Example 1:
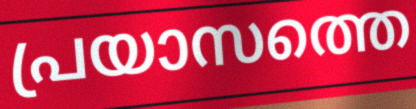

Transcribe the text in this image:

പ്രയാസത്തെ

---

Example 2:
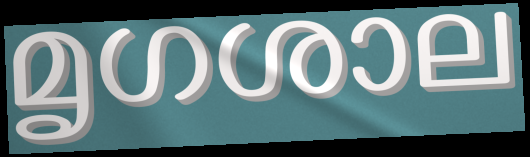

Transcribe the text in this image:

മൃഗശാല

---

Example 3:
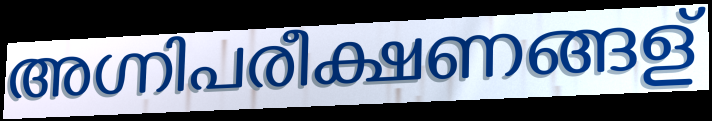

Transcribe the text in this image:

അഗ്നിപരീക്ഷണങ്ങള്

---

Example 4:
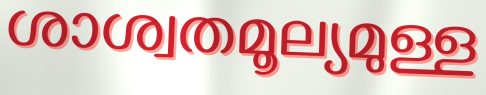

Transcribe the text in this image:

ശാശ്വതമൂല്യമുള്ള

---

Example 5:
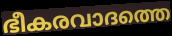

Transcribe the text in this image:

ഭീകരവാദത്തെ